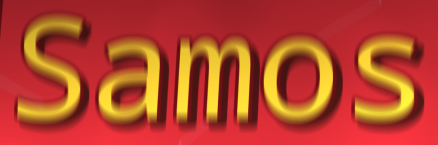
Samos